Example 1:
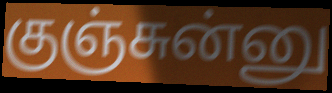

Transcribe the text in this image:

குஞ்சுன்னு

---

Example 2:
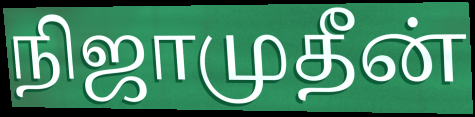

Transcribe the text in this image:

நிஜாமுதீன்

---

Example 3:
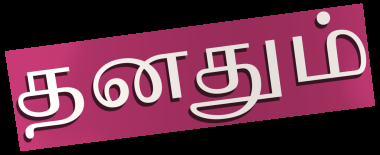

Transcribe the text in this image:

தனதும்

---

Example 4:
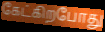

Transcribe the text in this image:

கேட்கிறபோது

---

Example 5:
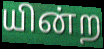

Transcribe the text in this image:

யின்ற